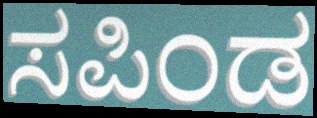
ಸಪಿಂಡ